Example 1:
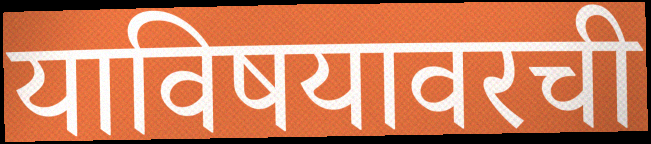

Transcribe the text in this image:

याविषयावरची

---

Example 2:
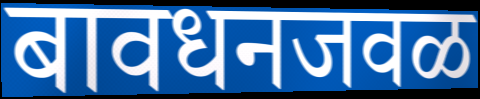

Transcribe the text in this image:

बावधनजवळ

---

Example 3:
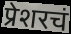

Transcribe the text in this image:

प्रेशरचं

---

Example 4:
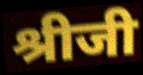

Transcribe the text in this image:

श्रीजी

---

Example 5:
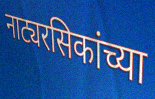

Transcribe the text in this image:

नाट्यरसिकांच्या